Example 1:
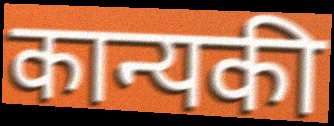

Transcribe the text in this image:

कान्यकी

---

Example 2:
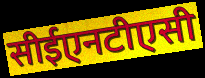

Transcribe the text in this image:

सीईएनटीएसी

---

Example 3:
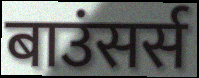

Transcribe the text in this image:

बाउंसर्स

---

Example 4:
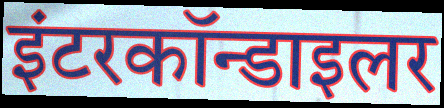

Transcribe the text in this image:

इंटरकॉन्डाइलर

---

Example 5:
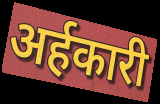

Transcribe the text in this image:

अर्हकारी